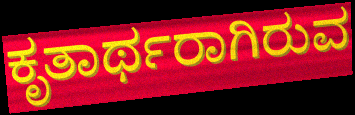
ಕೃತಾರ್ಥರಾಗಿರುವ